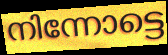
നിന്നോട്ടെ